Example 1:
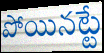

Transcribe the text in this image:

పోయినట్టే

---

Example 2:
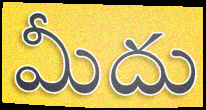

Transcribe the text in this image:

మీదు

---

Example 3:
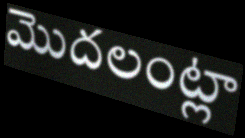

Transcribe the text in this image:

మొదలంట్లా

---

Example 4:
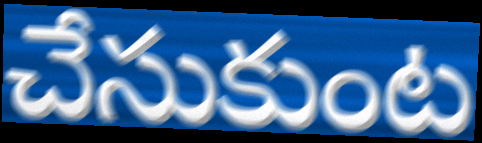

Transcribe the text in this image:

చేసుకుంట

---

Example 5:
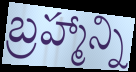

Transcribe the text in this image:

బ్రహ్మాన్ని